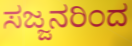
ಸಜ್ಜನರಿಂದ